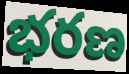
భరణ